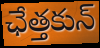
ఛేత్తకున్